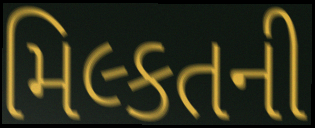
મિલ્કતની